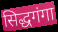
सिद्धगंगा